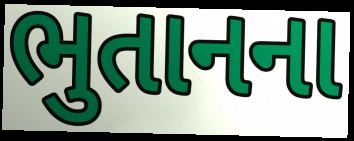
ભુતાનના